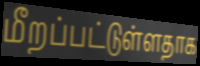
மீறப்பட்டுள்ளதாக